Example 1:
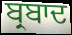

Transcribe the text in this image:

ਬ੍ਰਬਾਦ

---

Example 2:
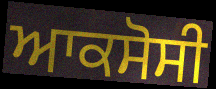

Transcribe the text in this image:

ਆਕਸੋਸੀ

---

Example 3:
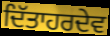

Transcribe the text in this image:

ਦਿੱਤਾਹਰਦੇਵ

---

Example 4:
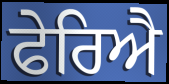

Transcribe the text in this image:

ਫੇਰਿਐ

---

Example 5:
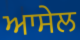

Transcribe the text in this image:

ਆਸੇਲ